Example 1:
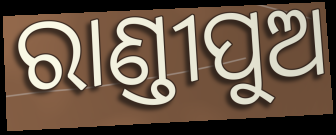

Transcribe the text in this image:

ରାଣ୍ଡୀପୁଅ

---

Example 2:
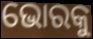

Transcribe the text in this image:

ଭୋରକୁ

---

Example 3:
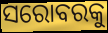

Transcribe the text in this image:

ସରୋବରକୁ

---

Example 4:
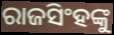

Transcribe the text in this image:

ରାଜସିଂହଙ୍କୁ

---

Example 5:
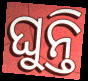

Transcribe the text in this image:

ଘୁନ୍ତି